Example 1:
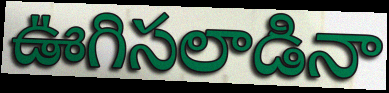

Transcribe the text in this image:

ఊగిసలాడినా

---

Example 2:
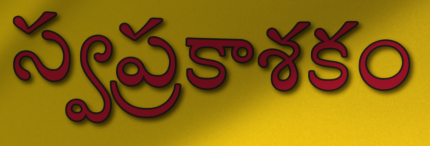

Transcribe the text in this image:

స్వప్రకాశకం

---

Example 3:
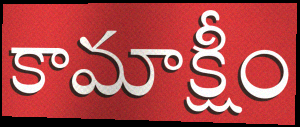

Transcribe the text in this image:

కామాక్షీం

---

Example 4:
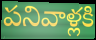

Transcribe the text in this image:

పనివాళ్లకి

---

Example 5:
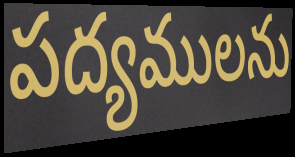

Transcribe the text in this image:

పద్యములను